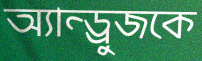
অ্যান্ড্রুজকে